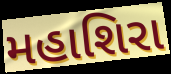
મહાશિરા